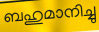
ബഹുമാനിച്ചു